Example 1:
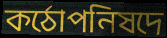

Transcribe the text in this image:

কঠোপনিষদে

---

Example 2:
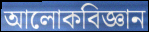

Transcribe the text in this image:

আলোকবিজ্ঞান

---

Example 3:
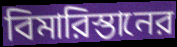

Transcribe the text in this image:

বিমারিস্তানের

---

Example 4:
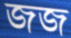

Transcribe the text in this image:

জজ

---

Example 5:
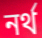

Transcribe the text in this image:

নর্থ